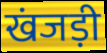
खंजड़ी